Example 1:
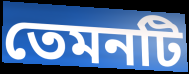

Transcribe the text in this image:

তেমনটি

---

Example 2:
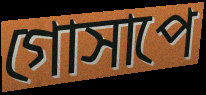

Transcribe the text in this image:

গোসাপে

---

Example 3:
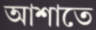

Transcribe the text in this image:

আশাতে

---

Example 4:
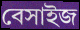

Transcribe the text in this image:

বেসাইজ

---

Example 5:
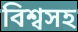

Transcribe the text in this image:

বিশ্বসহ